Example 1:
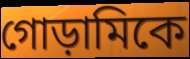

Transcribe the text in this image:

গোড়ামিকে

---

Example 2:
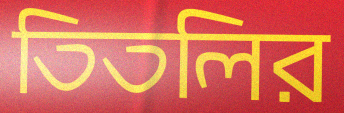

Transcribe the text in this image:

তিতলির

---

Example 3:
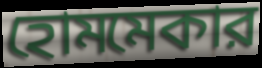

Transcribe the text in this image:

হোমমেকার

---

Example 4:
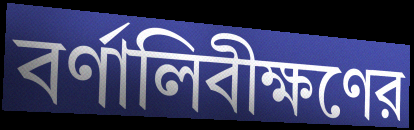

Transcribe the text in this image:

বর্ণালিবীক্ষণের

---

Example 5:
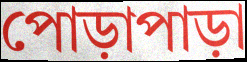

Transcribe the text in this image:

পোড়াপাড়া